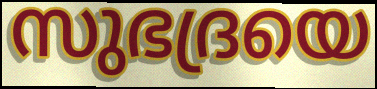
സുഭദ്രയെ